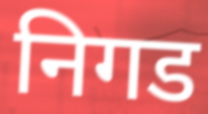
निगड